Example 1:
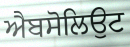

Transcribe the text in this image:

ਐਬਸੋਲਿਉਟ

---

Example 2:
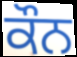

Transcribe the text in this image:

ਕੌਨ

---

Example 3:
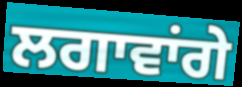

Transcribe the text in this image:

ਲਗਾਵਾਂਗੇ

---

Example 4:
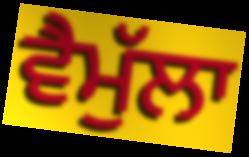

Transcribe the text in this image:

ਵੈਮੁੱਲਾ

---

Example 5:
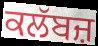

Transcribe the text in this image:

ਕਲੱਬਜ਼